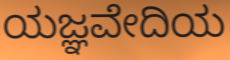
ಯಜ್ಞವೇದಿಯ